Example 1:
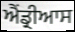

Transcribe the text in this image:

ਐਂਡ੍ਰੀਆਸ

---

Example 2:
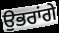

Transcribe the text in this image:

ਉਭਰਾਂਗੇ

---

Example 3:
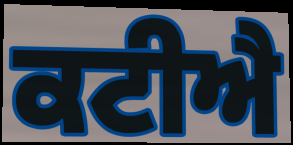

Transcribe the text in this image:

ਕਟੀਐ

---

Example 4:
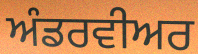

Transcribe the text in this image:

ਅੰਡਰਵੀਅਰ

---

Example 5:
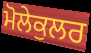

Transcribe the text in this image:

ਮੋਲੇਕੁਲਰ